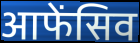
आफेंसिव